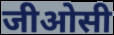
जीओसी